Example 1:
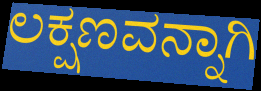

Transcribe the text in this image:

ಲಕ್ಷಣವನ್ನಾಗಿ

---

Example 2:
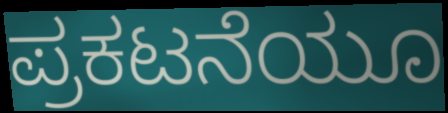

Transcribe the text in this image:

ಪ್ರಕಟನೆಯೂ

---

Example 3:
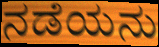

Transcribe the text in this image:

ನಡೆಯನು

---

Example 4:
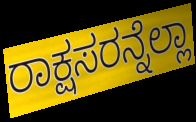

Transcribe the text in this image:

ರಾಕ್ಷಸರನ್ನೆಲ್ಲಾ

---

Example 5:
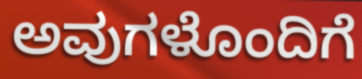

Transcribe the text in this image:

ಅವುಗಳೊಂದಿಗೆ